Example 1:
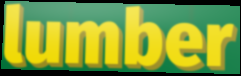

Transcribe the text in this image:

lumber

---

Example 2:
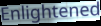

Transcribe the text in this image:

Enlightened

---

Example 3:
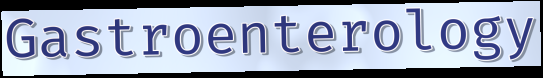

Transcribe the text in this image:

Gastroenterology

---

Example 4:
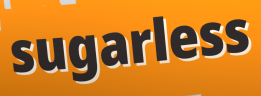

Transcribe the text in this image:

sugarless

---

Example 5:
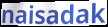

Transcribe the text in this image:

naisadak